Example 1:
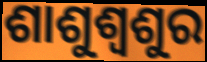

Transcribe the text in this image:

ଶାଶୁଶ୍ୱଶୁର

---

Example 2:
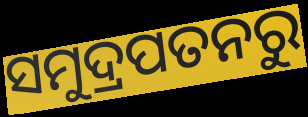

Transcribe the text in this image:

ସମୁଦ୍ରପତନରୁ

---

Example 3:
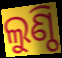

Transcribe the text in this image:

ଲୁଣ୍ଠି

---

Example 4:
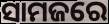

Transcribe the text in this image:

ସାମଜରେ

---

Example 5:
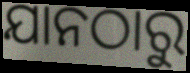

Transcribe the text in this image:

ଯାନଠାରୁ